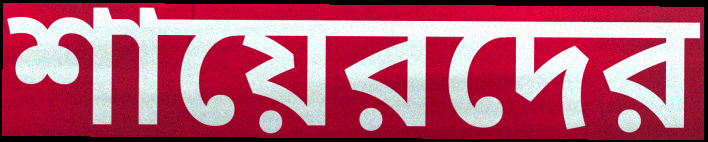
শায়েরদের